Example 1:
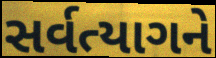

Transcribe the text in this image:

સર્વત્યાગને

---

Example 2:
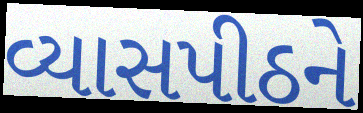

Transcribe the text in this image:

વ્યાસપીઠને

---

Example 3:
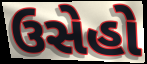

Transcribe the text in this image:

ઉસેહો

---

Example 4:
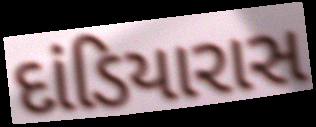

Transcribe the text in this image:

દાંડિયારાસ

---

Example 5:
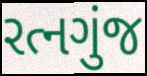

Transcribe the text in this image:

રત્નગુંજ